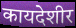
कायदेशीर